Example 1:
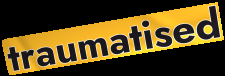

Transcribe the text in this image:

traumatised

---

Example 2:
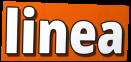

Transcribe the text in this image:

linea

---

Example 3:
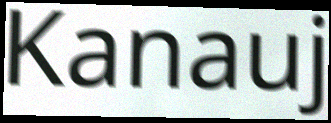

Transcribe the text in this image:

Kanauj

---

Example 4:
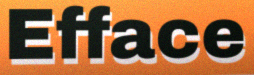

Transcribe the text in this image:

Efface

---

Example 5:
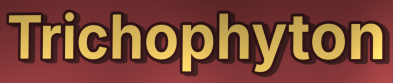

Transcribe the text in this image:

Trichophyton